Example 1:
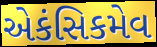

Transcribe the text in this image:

એકંસિકમેવ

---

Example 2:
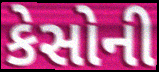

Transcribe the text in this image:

કેસોની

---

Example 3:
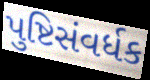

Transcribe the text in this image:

પુષ્ટિસંવર્ધક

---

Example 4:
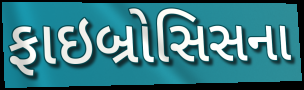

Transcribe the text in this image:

ફાઇબ્રોસિસના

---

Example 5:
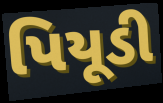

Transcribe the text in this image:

પિયૂડી